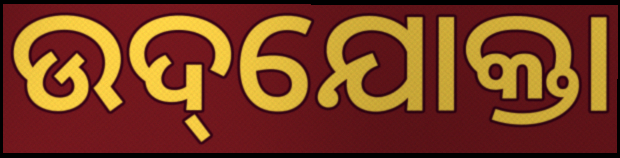
ଉଦ୍‌ଯୋକ୍ତା